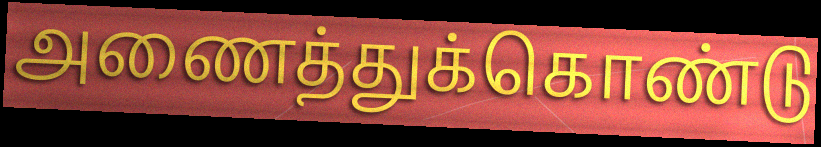
அணைத்துக்கொண்டு